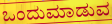
ಒಂದುಮಾಡುವ